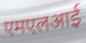
एमएलआई